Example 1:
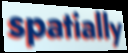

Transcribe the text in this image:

spatially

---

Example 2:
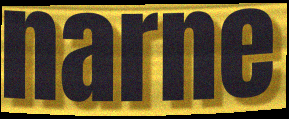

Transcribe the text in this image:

narne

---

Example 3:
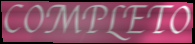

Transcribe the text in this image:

COMPLETO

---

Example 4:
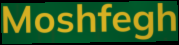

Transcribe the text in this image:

Moshfegh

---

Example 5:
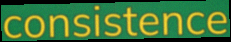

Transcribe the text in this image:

consistence